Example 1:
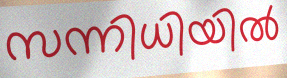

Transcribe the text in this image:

സന്നിധിയിൽ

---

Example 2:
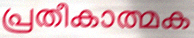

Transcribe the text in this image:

പ്രതീകാത്മക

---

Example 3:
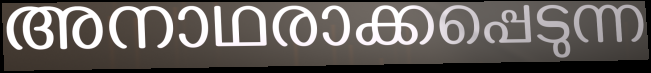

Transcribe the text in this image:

അനാഥരാക്കപ്പെടുന്ന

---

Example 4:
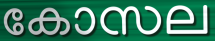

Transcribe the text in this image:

കോസല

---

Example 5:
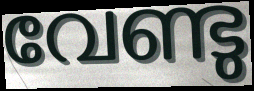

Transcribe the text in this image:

വേണ്ടു